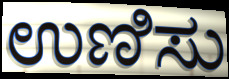
ಉಣಿಸು